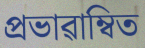
প্ৰভাৱাম্বিত